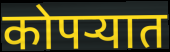
कोपऱ्यात